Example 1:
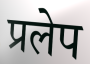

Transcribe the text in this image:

प्रलेप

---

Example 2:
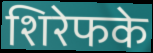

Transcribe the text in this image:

शिरेफके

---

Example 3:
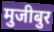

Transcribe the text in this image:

मुजीबुर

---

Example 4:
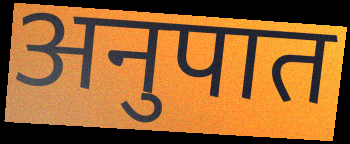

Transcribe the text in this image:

अनुपात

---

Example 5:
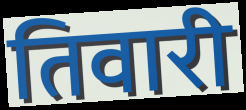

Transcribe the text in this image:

तिवारी